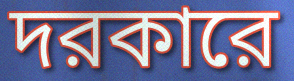
দরকারে